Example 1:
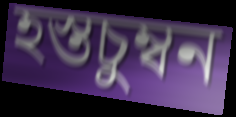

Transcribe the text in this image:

হস্তচুম্বন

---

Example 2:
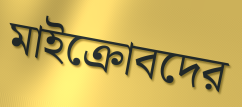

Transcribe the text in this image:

মাইক্রোবদের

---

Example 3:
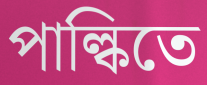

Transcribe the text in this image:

পাল্কিতে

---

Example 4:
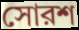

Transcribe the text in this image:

সোরশ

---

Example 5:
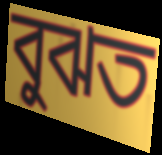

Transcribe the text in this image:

বুঝত